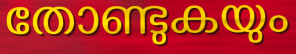
തോണ്ടുകയും